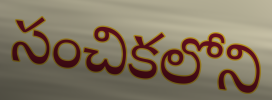
సంచికలోని